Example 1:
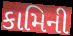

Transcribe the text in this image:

કામિની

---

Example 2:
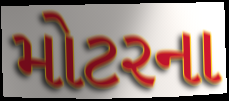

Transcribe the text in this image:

મોટરના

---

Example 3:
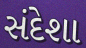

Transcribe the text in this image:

સંદેશા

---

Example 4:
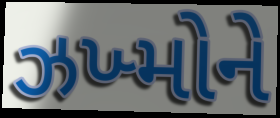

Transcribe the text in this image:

ઝખ્મોને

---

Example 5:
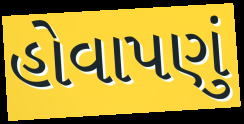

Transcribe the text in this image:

હોવાપણું